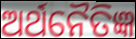
ଅର୍ଥନୈତିଜ୍ଞ